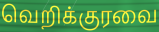
வெறிக்குரவை